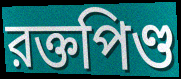
রক্তপিণ্ড